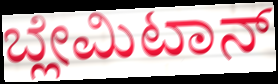
ಬ್ಲೇಮಿಟಾನ್